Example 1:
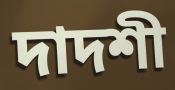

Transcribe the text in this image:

দাদশী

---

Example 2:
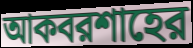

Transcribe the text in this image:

আকবরশাহের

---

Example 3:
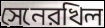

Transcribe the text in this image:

সেনেরখিল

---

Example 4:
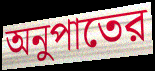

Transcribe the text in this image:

অনুপাতের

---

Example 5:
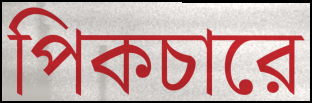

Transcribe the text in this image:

পিকচারে